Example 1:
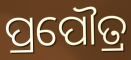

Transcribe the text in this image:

ପ୍ରପୌତ୍ର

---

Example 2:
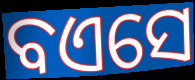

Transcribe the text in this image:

ବଏସେ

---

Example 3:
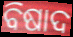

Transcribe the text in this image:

ବିଷାଦ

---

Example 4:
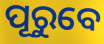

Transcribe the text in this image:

ପୂରୁବେ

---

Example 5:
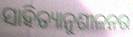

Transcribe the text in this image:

ସାହିତ୍ୟାନୁଶୀଳନର